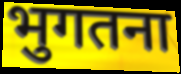
भुगतना